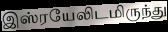
இஸ்ரயேலிடமிருந்து